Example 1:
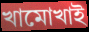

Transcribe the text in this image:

খামোখাই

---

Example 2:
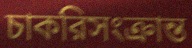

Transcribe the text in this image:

চাকরিসংক্রান্ত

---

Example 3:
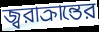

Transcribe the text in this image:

জ্বরাক্রান্তের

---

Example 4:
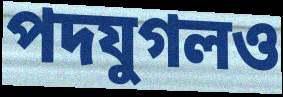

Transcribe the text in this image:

পদযুগলও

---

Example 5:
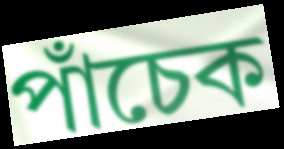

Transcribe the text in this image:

পাঁচেক